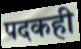
पदकही